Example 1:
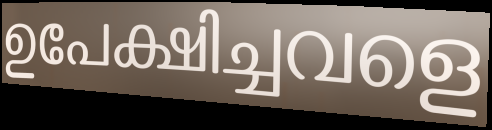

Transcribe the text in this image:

ഉപേക്ഷിച്ചവളെ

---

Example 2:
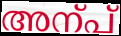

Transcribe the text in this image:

അന്പ്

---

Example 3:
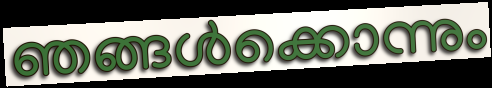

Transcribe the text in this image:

ഞങ്ങൾക്കൊന്നും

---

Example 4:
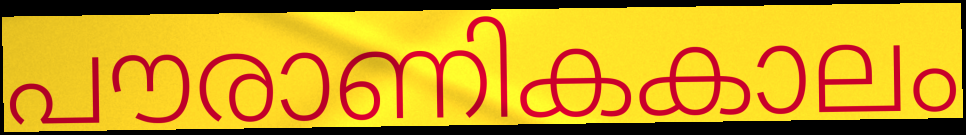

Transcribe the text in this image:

പൗരാണികകാലം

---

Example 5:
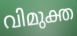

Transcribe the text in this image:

വിമുക്ത